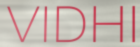
VIDHI